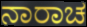
ನಾರಾಚ